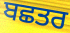
ਬਛਤਰ